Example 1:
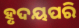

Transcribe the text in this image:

ହୃଦୟପରି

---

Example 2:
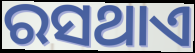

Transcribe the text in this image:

ରସଥାଏ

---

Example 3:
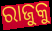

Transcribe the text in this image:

ରାଜୁକୁ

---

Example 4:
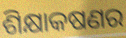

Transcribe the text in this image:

ଶିକ୍ଷାକଷଣର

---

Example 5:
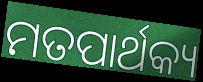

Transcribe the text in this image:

ମତପାର୍ଥକ୍ୟ